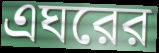
এঘরের